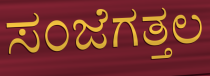
ಸಂಜೆಗತ್ತಲ